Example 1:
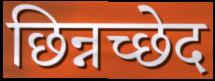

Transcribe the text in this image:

छिन्नच्छेद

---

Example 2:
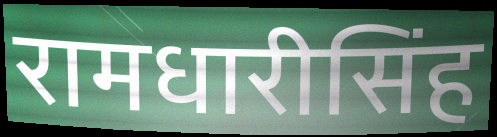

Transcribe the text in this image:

रामधारीसिंह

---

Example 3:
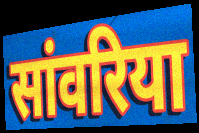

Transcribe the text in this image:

सांवरिया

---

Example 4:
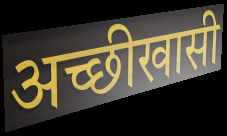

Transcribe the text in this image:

अच्छीखासी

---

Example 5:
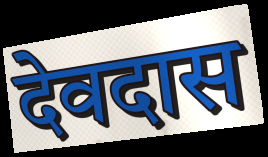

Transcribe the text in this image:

देवदास